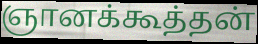
ஞானக்கூத்தன்